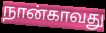
நான்காவது